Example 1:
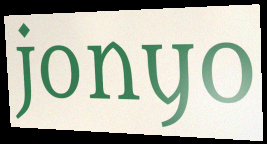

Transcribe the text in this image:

jonyo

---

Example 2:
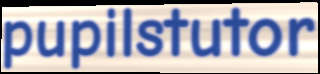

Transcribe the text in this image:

pupilstutor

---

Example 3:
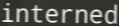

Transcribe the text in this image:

interned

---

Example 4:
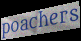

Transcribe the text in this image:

poachers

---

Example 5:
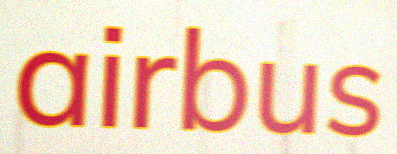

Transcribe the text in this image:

airbus